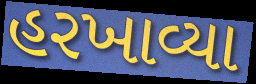
હરખાવ્યા